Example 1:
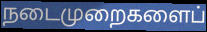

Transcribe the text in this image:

நடைமுறைகளைப்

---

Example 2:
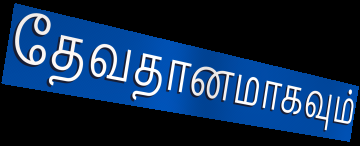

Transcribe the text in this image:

தேவதானமாகவும்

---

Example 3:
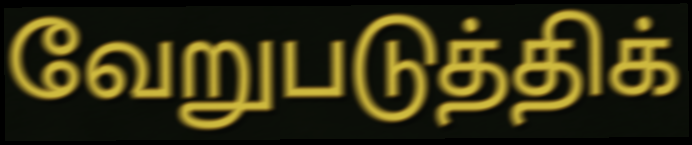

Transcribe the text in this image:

வேறுபடுத்திக்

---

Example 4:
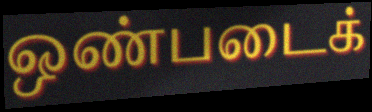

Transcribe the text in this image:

ஒண்படைக்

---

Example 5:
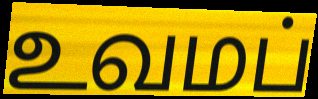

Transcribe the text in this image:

உவமப்